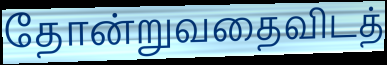
தோன்றுவதைவிடத்